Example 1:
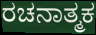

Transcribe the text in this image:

ರಚನಾತ್ಮಕ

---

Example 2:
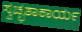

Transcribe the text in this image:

ಸ್ವಚ್ಛತಾಕಾರ್ಯ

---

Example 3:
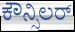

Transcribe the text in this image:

ಕೌನ್ಸಿಲರ್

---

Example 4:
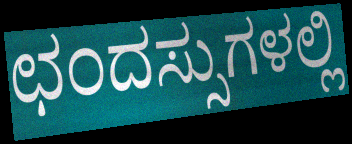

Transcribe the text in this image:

ಛಂದಸ್ಸುಗಳಲ್ಲಿ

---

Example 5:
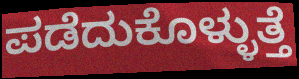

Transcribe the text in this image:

ಪಡೆದುಕೊಳ್ಳುತ್ತೆ